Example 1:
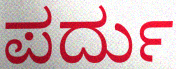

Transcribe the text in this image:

ಪರ್ದು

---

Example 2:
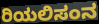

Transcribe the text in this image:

ರಿಯಲಿಸಂನ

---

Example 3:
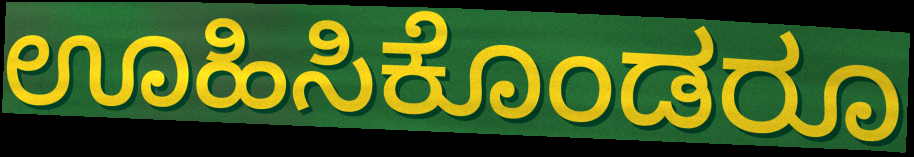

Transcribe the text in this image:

ಊಹಿಸಿಕೊಂಡರೂ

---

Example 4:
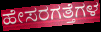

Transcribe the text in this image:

ಹೇಸರಗತ್ತೆಗಳ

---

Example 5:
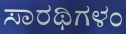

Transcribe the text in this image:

ಸಾರಥಿಗಳಂ